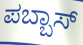
ಪಬ್ಬಾಸ್